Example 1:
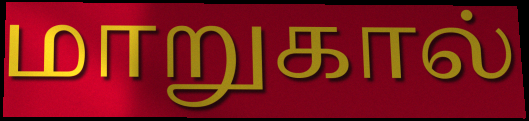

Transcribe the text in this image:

மாறுகால்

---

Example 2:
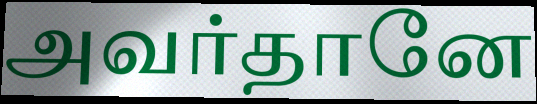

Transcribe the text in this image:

அவர்தானே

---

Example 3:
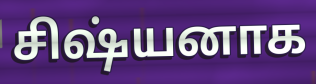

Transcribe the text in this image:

சிஷ்யனாக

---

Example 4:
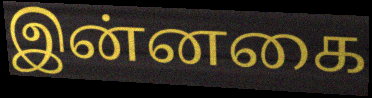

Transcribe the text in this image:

இன்னகை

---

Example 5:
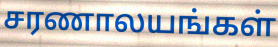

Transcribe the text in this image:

சரணாலயங்கள்